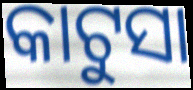
କାଟୁସା